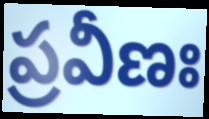
ప్రవీణః